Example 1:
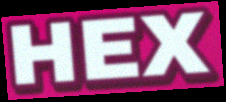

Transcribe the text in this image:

HEX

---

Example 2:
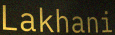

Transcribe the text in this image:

Lakhani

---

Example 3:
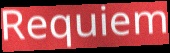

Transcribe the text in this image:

Requiem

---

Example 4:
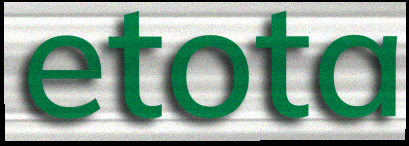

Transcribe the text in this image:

etota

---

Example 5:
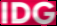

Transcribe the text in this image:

IDG